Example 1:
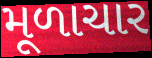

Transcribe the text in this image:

મૂળાચાર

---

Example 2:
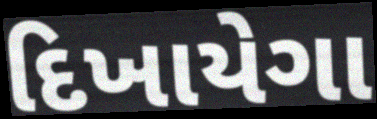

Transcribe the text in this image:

દિખાયેગા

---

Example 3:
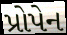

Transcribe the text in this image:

પ્રોપેન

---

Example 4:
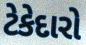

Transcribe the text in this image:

ટેકેદારો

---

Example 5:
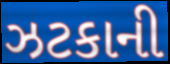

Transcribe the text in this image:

ઝટકાની